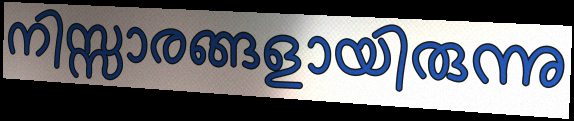
നിസ്സാരങ്ങളായിരുന്നു